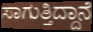
ಸಾಗುತ್ತಿದ್ದಾನೆ